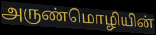
அருண்மொழியின்